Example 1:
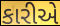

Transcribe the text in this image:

કારીએ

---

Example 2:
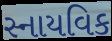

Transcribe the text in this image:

સ્નાયવિક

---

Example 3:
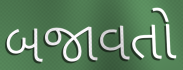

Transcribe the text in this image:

બજાવતો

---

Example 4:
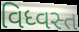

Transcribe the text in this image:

વિધ્વસ્ત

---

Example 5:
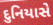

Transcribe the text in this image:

દુનિયાસે